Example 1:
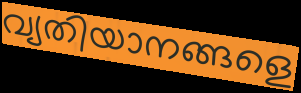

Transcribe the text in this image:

വ്യതിയാനങ്ങളെ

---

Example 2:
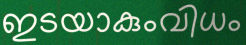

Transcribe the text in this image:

ഇടയാകുംവിധം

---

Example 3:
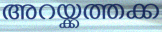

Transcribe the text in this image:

അറയ്ക്കത്തക്ക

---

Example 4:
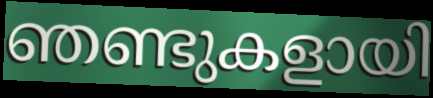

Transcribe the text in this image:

ഞണ്ടുകളായി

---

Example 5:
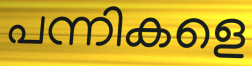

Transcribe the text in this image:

പന്നികളെ